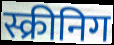
स्क्रीनिग